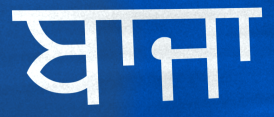
ਬਾਜਾ